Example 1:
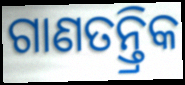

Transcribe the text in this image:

ଗାଣତନ୍ତ୍ରିକ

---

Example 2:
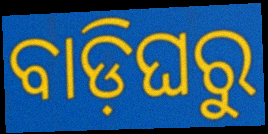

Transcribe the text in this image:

ବାଡ଼ିଘରୁ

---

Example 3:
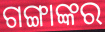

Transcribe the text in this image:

ଗଙ୍ଗାଙ୍କର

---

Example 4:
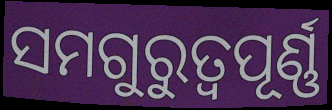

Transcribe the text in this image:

ସମଗୁରୁତ୍ଵପୂର୍ଣ୍ଣ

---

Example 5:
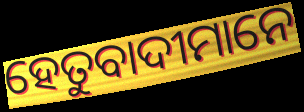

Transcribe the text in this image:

ହେତୁବାଦୀମାନେ